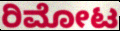
ರಿಮೋಟ